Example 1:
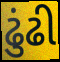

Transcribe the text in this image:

ઢુંઢી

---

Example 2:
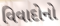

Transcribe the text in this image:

વિવાદોનો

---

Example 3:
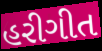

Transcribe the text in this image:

હરીગીત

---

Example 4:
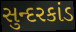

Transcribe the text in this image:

સુન્દરકાંડ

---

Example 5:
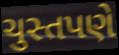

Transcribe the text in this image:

ચુસ્તપણે